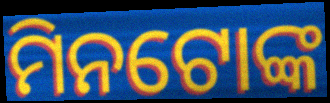
ମିନଟୋଙ୍କ